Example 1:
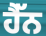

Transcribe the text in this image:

ਹੈੱਨ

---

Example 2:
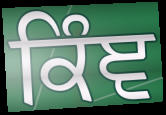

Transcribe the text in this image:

ਕਿੰਞ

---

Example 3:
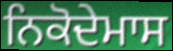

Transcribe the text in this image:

ਨਿਕੋਦੇਮਾਸ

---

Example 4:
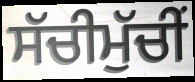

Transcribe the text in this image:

ਸੱਚੀਮੁੱਚੀਂ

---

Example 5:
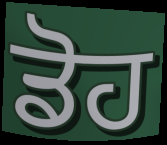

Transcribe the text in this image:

ਡੋਹ